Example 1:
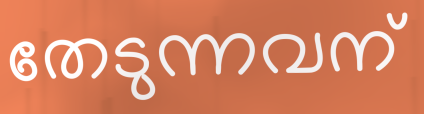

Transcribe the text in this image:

തേടുന്നവന്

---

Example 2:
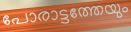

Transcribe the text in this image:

പോരാട്ടത്തേയും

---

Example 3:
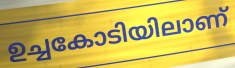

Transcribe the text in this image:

ഉച്ചകോടിയിലാണ്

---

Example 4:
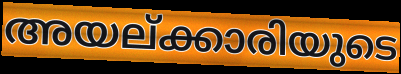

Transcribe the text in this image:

അയല്ക്കാരിയുടെ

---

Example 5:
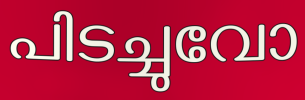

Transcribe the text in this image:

പിടച്ചുവോ